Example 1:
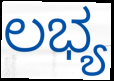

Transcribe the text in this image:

ಲಭ್ಯ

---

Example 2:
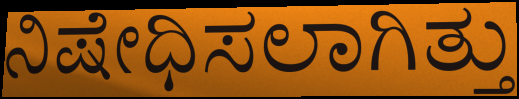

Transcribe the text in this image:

ನಿಷೇಧಿಸಲಾಗಿತ್ತು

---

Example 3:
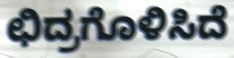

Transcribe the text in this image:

ಛಿದ್ರಗೊಳಿಸಿದೆ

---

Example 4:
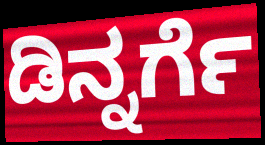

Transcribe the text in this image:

ಡಿನ್ನರ್ಗೆ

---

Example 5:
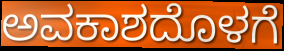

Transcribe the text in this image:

ಅವಕಾಶದೊಳಗೆ